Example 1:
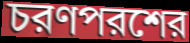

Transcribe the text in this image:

চরণপরশের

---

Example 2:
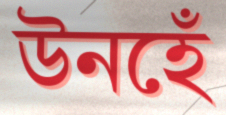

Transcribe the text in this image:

উনহেঁ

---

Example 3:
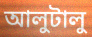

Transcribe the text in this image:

আলুটালু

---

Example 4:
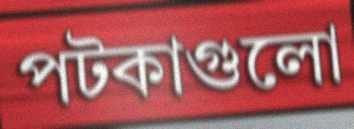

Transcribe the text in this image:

পটকাগুলো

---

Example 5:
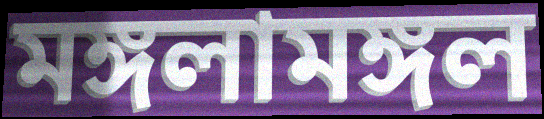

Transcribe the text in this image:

মঙ্গলামঙ্গল